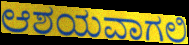
ಆಶಯವಾಗಲಿ